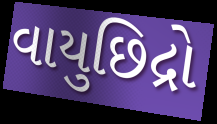
વાયુછિદ્રો